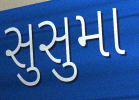
સુસુમા